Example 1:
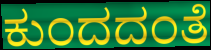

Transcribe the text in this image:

ಕುಂದದಂತೆ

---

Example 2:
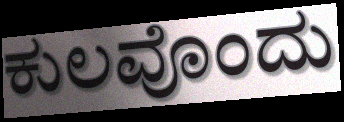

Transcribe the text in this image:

ಕುಲವೊಂದು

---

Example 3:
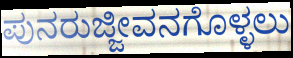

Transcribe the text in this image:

ಪುನರುಜ್ಜೀವನಗೊಳ್ಳಲು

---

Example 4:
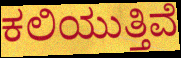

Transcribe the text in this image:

ಕಲಿಯುತ್ತಿವೆ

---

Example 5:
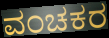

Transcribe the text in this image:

ವಂಚಕರ